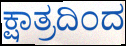
ಕ್ಷಾತ್ರದಿಂದ